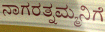
ನಾಗರತ್ನಮ್ಮನಿಗೆ